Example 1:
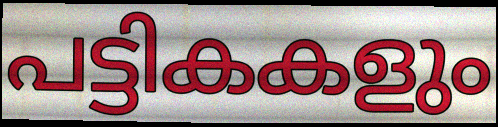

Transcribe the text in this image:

പട്ടികകളും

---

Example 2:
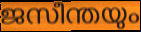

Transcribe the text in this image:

ജസീന്തയും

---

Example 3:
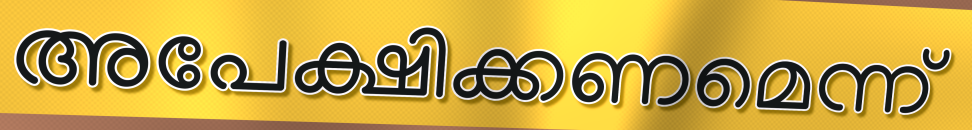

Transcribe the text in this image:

അപേക്ഷിക്കണമെന്ന്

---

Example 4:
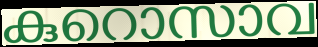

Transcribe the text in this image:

കുറൊസാവ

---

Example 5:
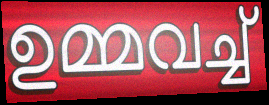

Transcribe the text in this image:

ഉമ്മവച്ച്